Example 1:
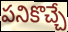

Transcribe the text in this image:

పనికొచ్చే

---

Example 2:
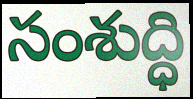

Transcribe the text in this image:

సంశుద్ధి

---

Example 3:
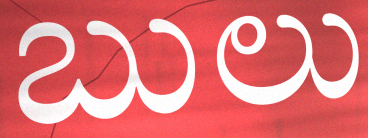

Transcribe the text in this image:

బులు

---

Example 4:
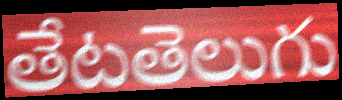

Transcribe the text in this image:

తేటతెలుగు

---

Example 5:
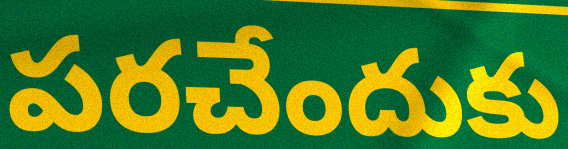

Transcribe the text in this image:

పరచేందుకు